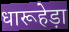
धारूहेड़ा